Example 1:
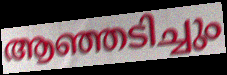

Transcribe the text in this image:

ആഞ്ഞടിച്ചും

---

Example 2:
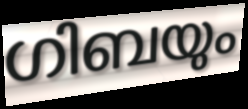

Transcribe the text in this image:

ഗിബയും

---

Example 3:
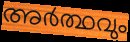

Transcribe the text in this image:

അർത്ഥവും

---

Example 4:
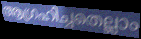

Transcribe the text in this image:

ആഗ്രഹിച്ചതെല്ലാം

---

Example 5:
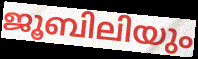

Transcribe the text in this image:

ജൂബിലിയും